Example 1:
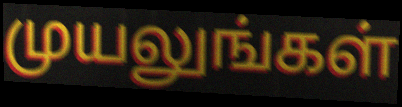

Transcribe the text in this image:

முயலுங்கள்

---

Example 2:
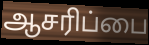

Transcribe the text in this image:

ஆசரிப்பை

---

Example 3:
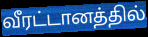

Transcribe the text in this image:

வீரட்டானத்தில்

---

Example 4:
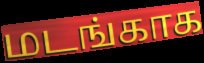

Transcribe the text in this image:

மடங்காக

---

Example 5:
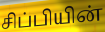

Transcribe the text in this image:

சிப்பியின்